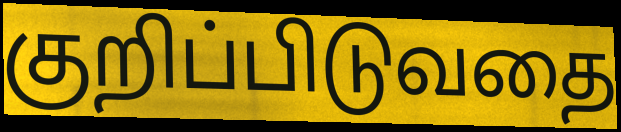
குறிப்பிடுவதை